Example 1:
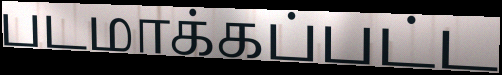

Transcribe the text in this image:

படமாக்கப்பட்ட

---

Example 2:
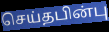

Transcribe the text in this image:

செய்தபின்பு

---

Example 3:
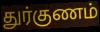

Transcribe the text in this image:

துர்குணம்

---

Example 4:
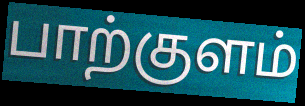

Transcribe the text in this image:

பாற்குளம்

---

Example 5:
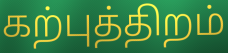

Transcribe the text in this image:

கற்புத்திறம்